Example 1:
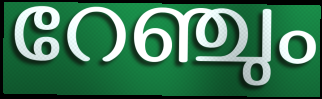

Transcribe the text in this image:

റേഞ്ചും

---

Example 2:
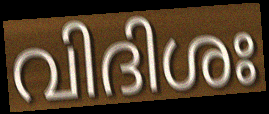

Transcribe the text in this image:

വിദിശഃ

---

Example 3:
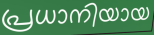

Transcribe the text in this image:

പ്രധാനിയായ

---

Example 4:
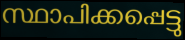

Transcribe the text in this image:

സ്ഥാപിക്കപ്പെട്ടു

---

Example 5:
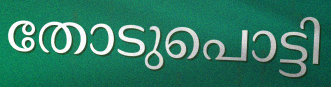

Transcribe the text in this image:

തോടുപൊട്ടി